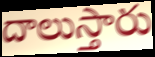
దాలుస్తారు